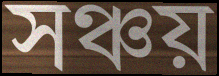
সঞ্চয়